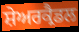
ਸ਼ੇਅਰਕ੍ਰੈਡਲ